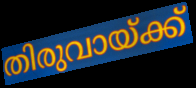
തിരുവായ്ക്ക്